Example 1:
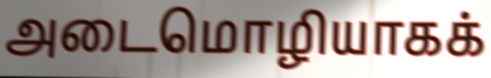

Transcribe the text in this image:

அடைமொழியாகக்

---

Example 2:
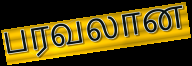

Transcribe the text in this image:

பரவலான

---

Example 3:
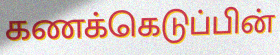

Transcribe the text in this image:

கணக்கெடுப்பின்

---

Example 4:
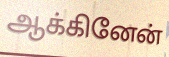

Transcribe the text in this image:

ஆக்கினேன்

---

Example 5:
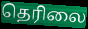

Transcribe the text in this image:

தெரிலை